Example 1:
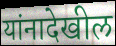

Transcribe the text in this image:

यांनादेखील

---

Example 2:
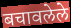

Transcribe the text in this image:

बचावलेले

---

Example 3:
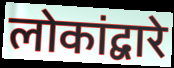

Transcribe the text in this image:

लोकांद्वारे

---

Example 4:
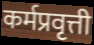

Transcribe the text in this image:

कर्मप्रवृत्ती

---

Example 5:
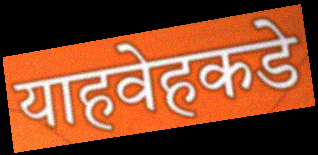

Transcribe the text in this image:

याहवेहकडे